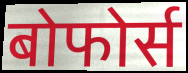
बोफोर्स